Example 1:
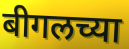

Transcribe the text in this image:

बीगलच्या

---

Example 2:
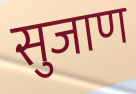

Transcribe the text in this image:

सुजाण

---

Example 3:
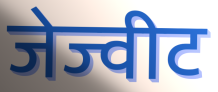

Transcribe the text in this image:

जेज्वीट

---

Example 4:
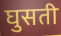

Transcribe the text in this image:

घुसती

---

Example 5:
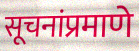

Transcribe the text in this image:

सूचनांप्रमाणे